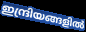
ഇന്ദ്രിയങ്ങളിൽ